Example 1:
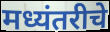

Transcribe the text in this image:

मध्यंतरीचे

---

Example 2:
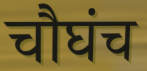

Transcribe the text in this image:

चौघंच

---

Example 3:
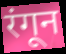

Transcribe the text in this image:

रंगून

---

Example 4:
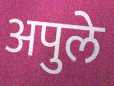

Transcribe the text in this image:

अपुले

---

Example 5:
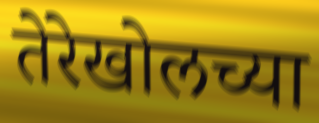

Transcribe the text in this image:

तेरेखोलच्या